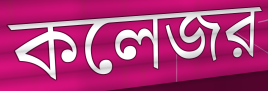
কলেজর